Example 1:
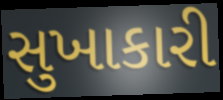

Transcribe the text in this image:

સુખાકારી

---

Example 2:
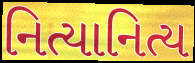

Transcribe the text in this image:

નિત્યાનિત્ય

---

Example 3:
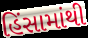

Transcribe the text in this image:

હિંસામાંથી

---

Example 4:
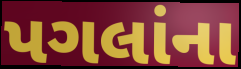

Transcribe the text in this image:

પગલાંના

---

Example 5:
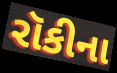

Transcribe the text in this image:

રૉકીના